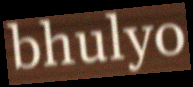
bhulyo